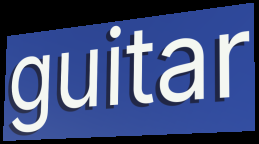
guitar